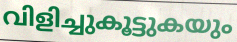
വിളിച്ചുകൂട്ടുകയും